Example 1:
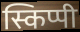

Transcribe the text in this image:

स्किप्पी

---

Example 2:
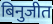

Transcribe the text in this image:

बिनुजीत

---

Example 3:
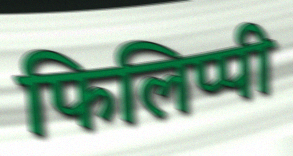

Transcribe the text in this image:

फिलिप्पी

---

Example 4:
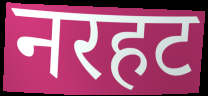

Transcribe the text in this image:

नरहट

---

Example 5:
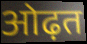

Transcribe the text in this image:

ओढ़त